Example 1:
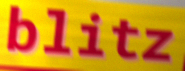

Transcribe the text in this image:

blitz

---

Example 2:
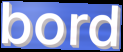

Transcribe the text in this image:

bord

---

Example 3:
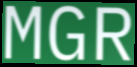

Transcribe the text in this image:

MGR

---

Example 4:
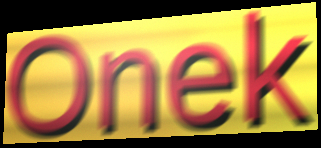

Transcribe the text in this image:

Onek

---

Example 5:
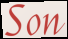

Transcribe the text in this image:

Son